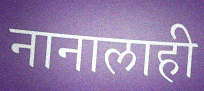
नानालाही